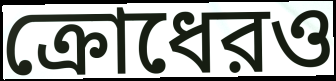
ক্রোধেরও